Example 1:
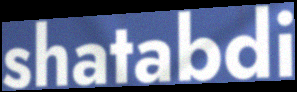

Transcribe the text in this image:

shatabdi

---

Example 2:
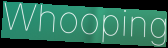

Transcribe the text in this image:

Whooping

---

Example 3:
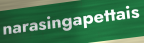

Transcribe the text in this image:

narasingapettais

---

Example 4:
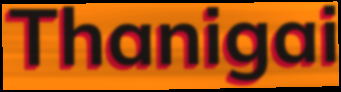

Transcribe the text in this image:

Thanigai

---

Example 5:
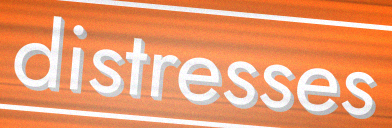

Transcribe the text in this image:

distresses